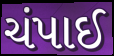
ચંપાઈ